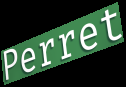
Perret